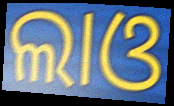
ଲାଓ